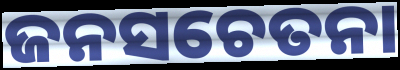
ଜନସଚେତନା